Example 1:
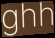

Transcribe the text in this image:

ghh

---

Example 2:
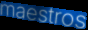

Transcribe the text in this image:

maestros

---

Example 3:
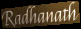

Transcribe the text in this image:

Radhanath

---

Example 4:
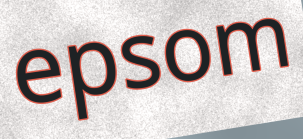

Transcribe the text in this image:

epsom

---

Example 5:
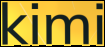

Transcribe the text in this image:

kimi